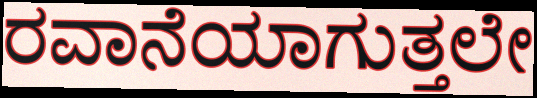
ರವಾನೆಯಾಗುತ್ತಲೇ